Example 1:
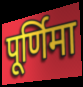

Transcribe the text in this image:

पूर्णिमा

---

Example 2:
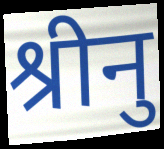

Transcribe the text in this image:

श्रीनु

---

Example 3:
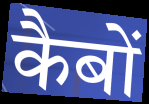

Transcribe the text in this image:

कैबों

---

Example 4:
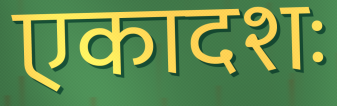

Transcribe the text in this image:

एकादशः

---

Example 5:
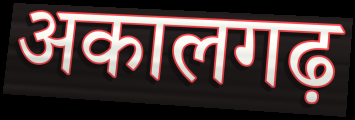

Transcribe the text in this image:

अकालगढ़